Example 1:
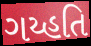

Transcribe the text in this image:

ગય્હતિ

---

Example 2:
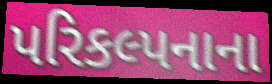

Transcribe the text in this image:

પરિકલ્પનાના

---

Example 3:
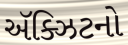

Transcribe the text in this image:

ઍક્ઝિટનો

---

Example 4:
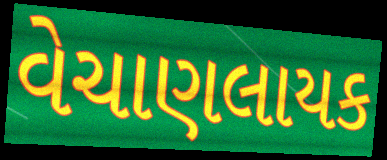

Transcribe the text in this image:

વેચાણલાયક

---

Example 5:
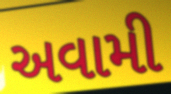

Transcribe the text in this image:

અવામી